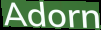
Adorn